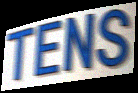
TENS